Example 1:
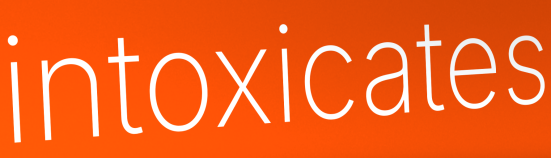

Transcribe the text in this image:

intoxicates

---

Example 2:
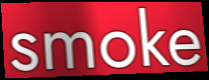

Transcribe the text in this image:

smoke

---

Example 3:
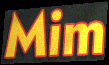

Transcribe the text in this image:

Mim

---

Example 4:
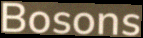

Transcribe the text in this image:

Bosons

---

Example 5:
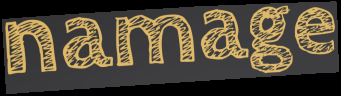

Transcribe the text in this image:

namage